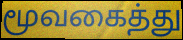
மூவகைத்து